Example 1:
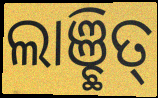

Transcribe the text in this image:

ଲାଞ୍ଛିତ୍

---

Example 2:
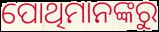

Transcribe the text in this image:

ପୋଥିମାନଙ୍କରୁ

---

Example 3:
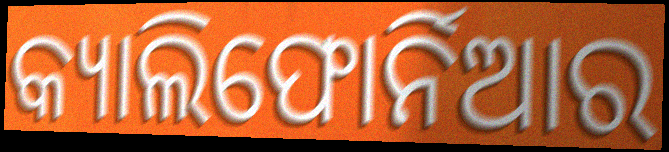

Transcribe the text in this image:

କ୍ୟାଲିଫୋର୍ନିଆର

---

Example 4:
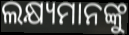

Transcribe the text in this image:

ଲକ୍ଷ୍ୟମାନଙ୍କୁ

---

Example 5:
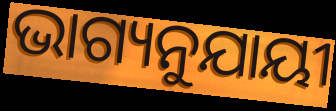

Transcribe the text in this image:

ଭାଗ୍ୟନୁଯାୟୀ